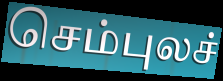
செம்புலச்